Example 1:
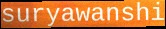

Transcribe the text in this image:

suryawanshi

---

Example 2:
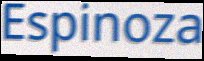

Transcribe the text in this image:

Espinoza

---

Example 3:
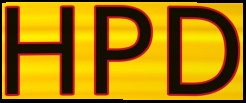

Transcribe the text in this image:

HPD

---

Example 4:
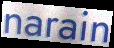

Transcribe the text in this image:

narain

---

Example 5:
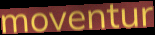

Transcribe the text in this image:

moventur